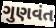
ગુણવંત